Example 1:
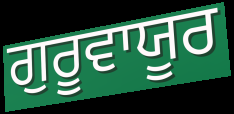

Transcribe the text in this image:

ਗੁਰੂਵਾਯੂਰ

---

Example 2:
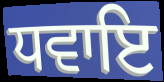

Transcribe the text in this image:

ਧਵਾਇ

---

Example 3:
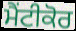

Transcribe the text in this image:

ਮੈਂਟੀਕੋਰ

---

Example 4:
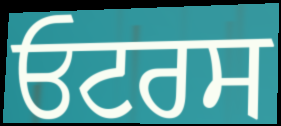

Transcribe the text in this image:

ਓਟਰਸ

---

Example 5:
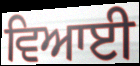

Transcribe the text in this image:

ਵਿਆਈ